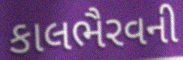
કાલભૈરવની